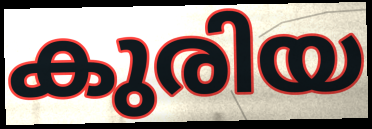
കുരിയ